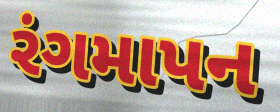
રંગમાપન